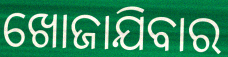
ଖୋଜାଯିବାର